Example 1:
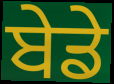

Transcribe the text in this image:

ਬੇਡੇ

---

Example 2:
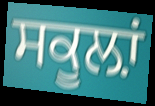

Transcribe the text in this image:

ਸਕੂਲ਼ਾਂ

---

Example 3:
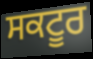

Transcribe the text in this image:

ਸਕਟੂਰ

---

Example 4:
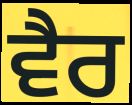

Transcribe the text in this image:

ਵੈਰ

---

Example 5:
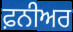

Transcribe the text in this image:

ਫ਼ਨੀਅਰ